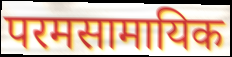
परमसामायिक